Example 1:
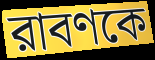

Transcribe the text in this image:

রাবণকে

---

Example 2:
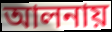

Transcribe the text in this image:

আলনায়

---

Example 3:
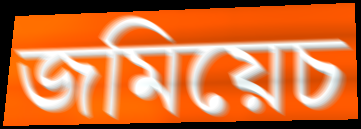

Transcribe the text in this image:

জমিয়েচ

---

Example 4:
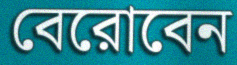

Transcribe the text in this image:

বেরোবেন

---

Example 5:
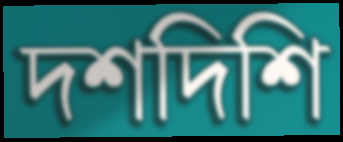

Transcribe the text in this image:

দশদিশি